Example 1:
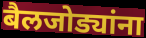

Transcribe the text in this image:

बैलजोड्यांना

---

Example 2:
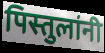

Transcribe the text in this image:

पिस्तुलांनी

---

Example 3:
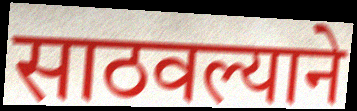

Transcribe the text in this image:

साठवल्याने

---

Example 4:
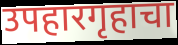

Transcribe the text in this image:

उपहारगृहाचा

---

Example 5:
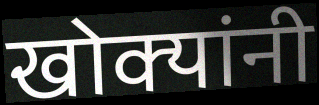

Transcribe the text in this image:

खोक्यांनी